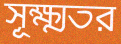
সূক্ষ্মতর